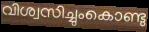
വിശ്വസിച്ചുംകൊണ്ടു